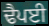
ਢੈਪਈ